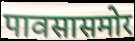
पावसासमोर